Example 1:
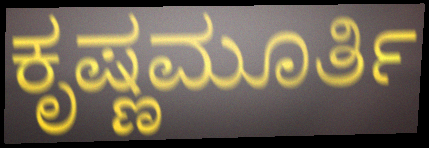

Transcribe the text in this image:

ಕೃಷ್ಣಮೂರ್ತಿ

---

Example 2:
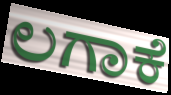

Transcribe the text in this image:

ಲಗಾಕೆ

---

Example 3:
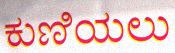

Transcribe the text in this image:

ಕುಣಿಯಲು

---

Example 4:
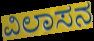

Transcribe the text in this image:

ವಿಲಾಸನ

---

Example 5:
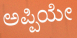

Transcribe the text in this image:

ಅಪ್ಪಿಯೇ